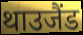
थाउजैंड